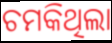
ଚମକିଥିଲା